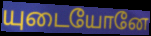
யுடையோனே